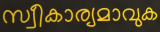
സ്വീകാര്യമാവുക